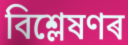
বিশ্লেষণৰ